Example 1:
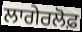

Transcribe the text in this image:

ਲਾਗੇਰਲੋਫ਼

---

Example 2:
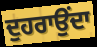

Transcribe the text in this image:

ਦੁਹਰਾਉਂਦਾ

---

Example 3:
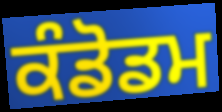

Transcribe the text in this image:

ਕੰਡੋਡਮ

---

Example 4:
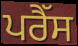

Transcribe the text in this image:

ਪਰੈੱਸ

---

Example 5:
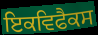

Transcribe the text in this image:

ਇਕਵਿਫੈਕਸ